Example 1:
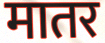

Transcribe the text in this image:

मातर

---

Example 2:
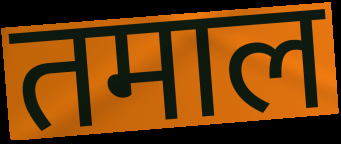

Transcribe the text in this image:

तमाल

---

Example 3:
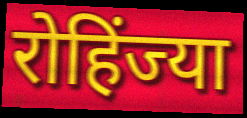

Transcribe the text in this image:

रोहिंज्या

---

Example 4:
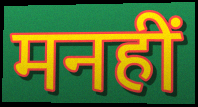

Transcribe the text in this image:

मनहीं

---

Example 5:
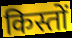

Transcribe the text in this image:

किस्तों